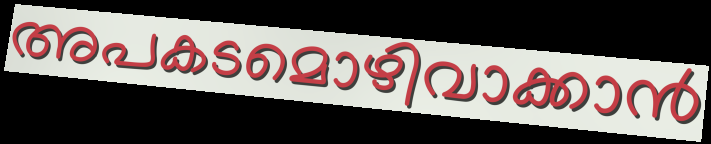
അപകടമൊഴിവാക്കാൻ